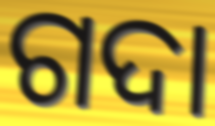
ଗଦା